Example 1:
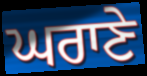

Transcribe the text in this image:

ਘਰਾਣੇ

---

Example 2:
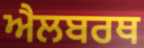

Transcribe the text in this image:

ਐਲਬਰਥ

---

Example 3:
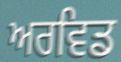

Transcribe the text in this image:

ਅਰਵਿਡ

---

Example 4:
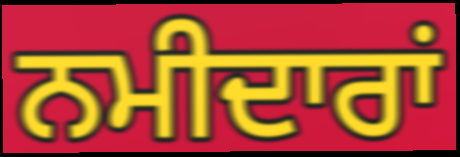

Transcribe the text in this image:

ਨਮੀਦਾਰਾਂ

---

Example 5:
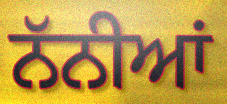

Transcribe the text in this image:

ਨੱਨੀਆਂ